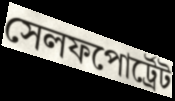
সেলফপোর্ট্রেট